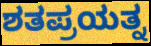
ಶತಪ್ರಯತ್ನ